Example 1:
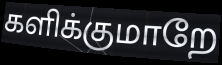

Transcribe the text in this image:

களிக்குமாறே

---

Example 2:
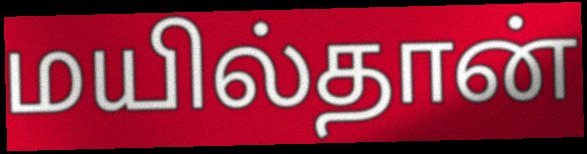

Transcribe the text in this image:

மயில்தான்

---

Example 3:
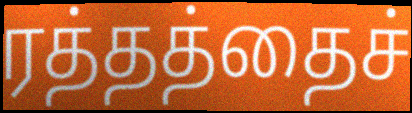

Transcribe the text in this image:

ரத்தத்தைச்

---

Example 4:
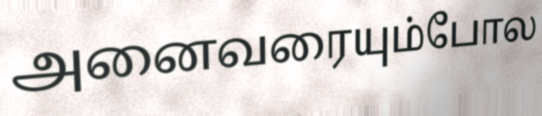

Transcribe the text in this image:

அனைவரையும்போல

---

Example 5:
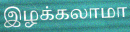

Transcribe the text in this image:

இழக்கலாமா